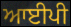
ਆਈਪੀ